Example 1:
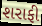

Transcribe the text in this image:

શરાફી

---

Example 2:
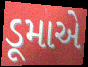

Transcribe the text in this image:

ડૂમાએ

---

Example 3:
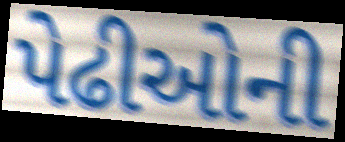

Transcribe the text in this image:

પેઢીઓની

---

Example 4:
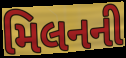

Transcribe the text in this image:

મિલનની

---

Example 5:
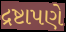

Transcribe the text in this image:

દ્રષ્ટાપણે